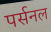
पर्सनल